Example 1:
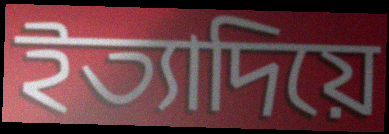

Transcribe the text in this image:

ইত্যাদিয়ে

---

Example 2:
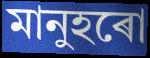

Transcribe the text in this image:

মানুহৰো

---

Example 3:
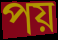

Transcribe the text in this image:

পয়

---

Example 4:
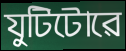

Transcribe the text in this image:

যুটিটোৱে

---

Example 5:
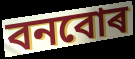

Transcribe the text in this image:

বনবোৰ